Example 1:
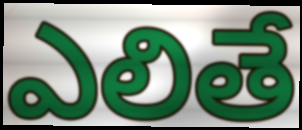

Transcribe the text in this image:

ఎలితే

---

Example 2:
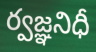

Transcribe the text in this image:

ర్వజ్ఞనిధీ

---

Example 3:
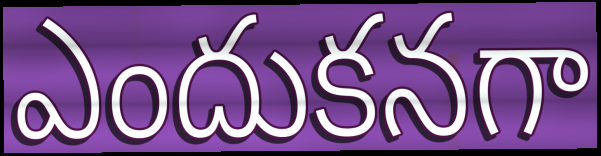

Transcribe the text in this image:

ఎందుకనగా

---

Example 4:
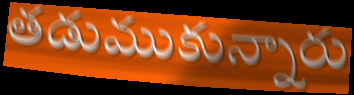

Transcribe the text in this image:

తడుముకున్నారు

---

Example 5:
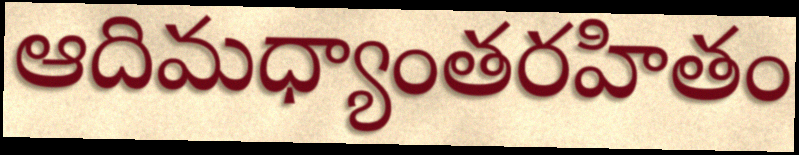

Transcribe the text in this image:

ఆదిమధ్యాంతరహితం